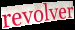
revolver